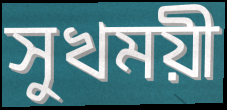
সুখময়ী